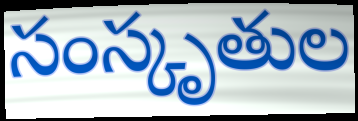
సంస్కృతుల